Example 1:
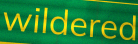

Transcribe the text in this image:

wildered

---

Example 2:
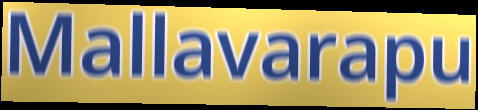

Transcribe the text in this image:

Mallavarapu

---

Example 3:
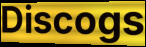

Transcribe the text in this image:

Discogs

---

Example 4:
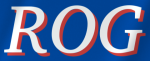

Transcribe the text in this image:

ROG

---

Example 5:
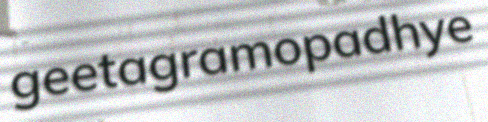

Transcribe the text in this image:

geetagramopadhye